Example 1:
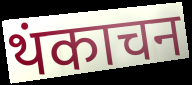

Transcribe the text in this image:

थंकाचन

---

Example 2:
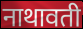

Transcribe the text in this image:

नाथावती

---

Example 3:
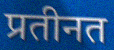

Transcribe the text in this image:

प्रतीनत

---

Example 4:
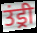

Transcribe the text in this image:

उंड्री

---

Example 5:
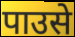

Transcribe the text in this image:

पाउसे